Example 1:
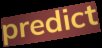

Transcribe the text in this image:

predict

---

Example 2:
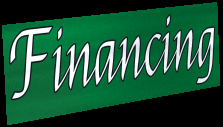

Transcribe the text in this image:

Financing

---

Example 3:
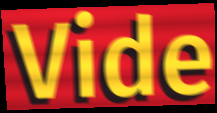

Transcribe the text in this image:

Vide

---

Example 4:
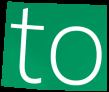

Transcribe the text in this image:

to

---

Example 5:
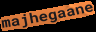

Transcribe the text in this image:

majhegaane